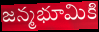
జన్మభూమికి